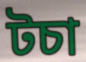
টচা